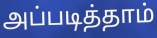
அப்படித்தாம்